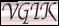
VGIK